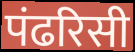
पंढरिसी